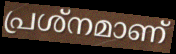
പ്രശ്നമാണ്